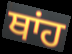
ਥਾਂਹ